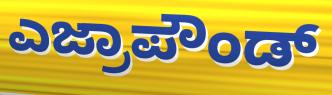
ಎಜ್ರಾಪೌಂಡ್